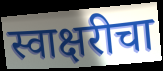
स्वाक्षरीचा